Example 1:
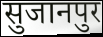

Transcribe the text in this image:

सुजानपुर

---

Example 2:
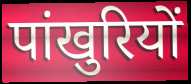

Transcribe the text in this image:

पांखुरियों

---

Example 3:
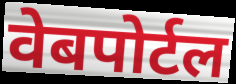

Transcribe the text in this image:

वेबपोर्टल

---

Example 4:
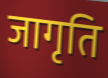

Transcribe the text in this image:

जागृति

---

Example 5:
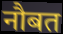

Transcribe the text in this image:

नौबत